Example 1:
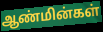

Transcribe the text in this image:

ஆண்மின்கள்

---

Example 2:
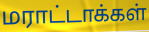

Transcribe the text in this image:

மராட்டாக்கள்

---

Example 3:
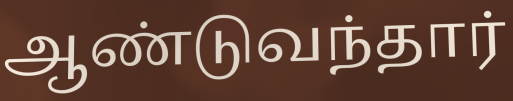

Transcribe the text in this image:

ஆண்டுவந்தார்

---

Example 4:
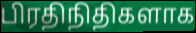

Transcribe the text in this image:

பிரதிநிதிகளாக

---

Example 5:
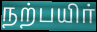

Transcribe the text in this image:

நற்பயிர்